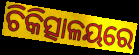
ଚିକିତ୍ସାଳୟରେ